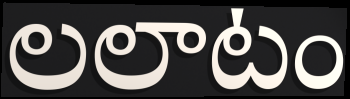
లలాటం